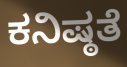
ಕನಿಷ್ಠತೆ